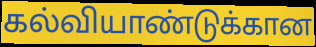
கல்வியாண்டுக்கான